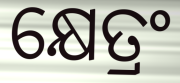
କ୍ଷେତ୍ରଂ